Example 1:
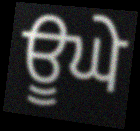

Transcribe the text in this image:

ਊਘੇ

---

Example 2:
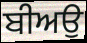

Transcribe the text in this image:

ਬੀਅਉ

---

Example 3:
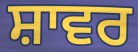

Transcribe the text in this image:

ਸ਼ਾਵਰ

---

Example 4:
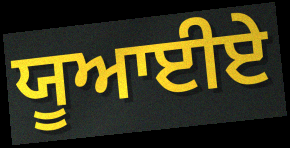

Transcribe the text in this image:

ਯੂਆਈਏ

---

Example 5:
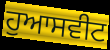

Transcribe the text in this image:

ਹੁਆਸਵੀਟ